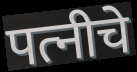
पत्‍नीचे